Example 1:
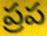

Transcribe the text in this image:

ప్రప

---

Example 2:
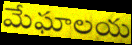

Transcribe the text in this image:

మేఘాలయ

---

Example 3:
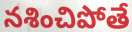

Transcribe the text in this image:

నశించిపోతే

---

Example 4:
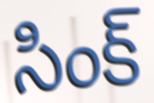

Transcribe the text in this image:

సింక్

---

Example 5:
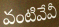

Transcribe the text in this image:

వంటివేవీ